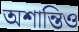
অশান্তিও